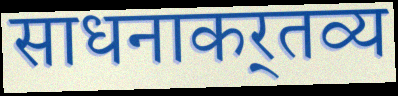
साधनाकर्तव्य